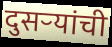
दुसऱ्यांची